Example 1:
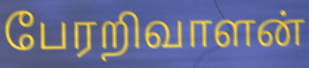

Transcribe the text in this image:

பேரறிவாளன்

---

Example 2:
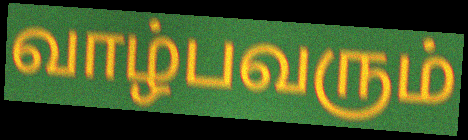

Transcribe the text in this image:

வாழ்பவரும்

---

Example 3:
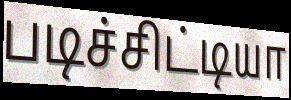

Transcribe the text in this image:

படிச்சிட்டியா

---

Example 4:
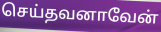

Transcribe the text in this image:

செய்தவனாவேன்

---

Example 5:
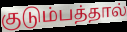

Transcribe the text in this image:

குடும்பத்தால்